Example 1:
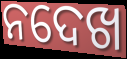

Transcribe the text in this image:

ନଦେଖ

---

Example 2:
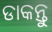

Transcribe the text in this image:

ଡାକନ୍ତୁ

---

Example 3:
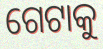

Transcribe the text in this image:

ଗେଟାକୁ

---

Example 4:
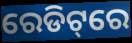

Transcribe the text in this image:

ରେଡିଟ୍‌ରେ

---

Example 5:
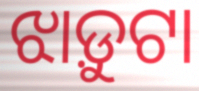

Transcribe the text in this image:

ଝାଡ଼ୁଟା